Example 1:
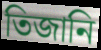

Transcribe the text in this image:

তিজানি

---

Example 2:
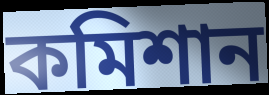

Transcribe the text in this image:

কমিশান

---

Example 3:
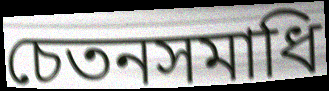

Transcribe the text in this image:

চেতনসমাধি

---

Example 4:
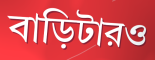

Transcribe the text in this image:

বাড়িটারও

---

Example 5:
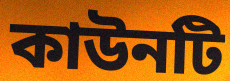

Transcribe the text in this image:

কাউনটি